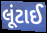
લૂંટાઈ